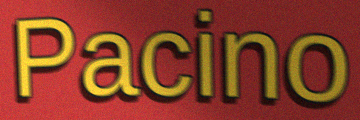
Pacino